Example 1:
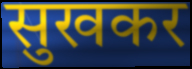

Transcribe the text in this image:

सुखकर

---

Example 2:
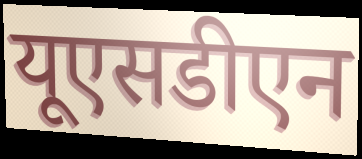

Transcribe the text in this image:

यूएसडीएन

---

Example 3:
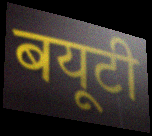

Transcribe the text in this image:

बयूटी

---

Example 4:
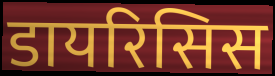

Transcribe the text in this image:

डायरिसिस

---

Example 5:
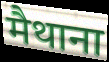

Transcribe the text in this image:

मैथाना